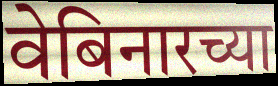
वेबिनारच्या